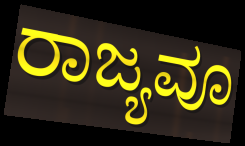
ರಾಜ್ಯವೂ